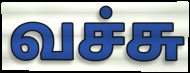
வச்சு